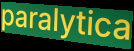
paralytica